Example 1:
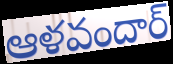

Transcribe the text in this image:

ఆళవందార్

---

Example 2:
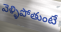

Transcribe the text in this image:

వెళ్ళిపోతుంటే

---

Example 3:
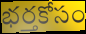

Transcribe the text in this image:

భర్తకోసం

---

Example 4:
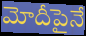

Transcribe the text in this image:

మోదీపైనే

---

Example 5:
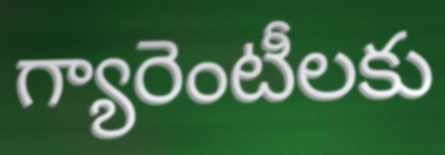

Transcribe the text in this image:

గ్యారెంటీలకు